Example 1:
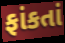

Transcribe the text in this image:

ફાંકતાં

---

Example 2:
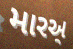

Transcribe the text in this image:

મારઅ્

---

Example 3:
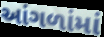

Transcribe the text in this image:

આંગળાંમાં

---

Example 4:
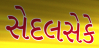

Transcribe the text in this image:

સેદલસેકે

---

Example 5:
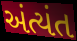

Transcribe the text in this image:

અંત્યંત